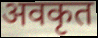
अवकृत